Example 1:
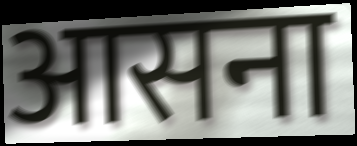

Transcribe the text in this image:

आसना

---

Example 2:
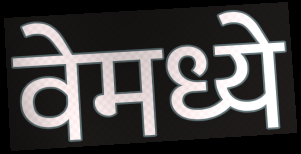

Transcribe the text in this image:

वेमध्ये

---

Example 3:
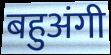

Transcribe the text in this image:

बहुअंगी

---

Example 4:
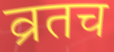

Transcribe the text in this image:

व्रतच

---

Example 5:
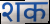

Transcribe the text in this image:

शक